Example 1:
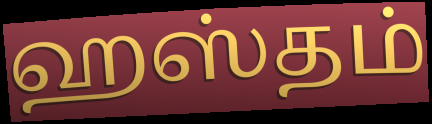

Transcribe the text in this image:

ஹஸ்தம்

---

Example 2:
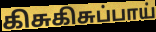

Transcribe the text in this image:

கிசுகிசுப்பாய்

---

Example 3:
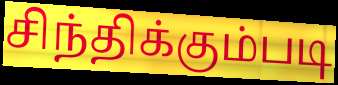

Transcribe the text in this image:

சிந்திக்கும்படி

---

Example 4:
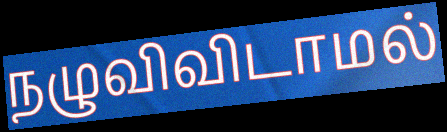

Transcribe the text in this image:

நழுவிவிடாமல்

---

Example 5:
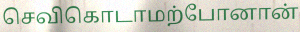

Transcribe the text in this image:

செவிகொடாமற்போனான்